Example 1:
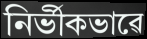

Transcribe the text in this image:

নিৰ্ভীকভাৱে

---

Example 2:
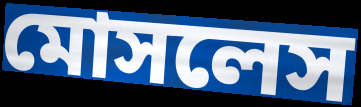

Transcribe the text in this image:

মোসলেস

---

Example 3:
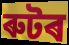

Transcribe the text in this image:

ৰুটৰ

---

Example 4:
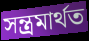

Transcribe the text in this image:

সন্ত্ৰমাৰ্থত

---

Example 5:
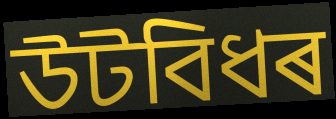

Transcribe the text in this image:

উটবিধৰ